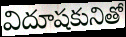
విదూషకునితో